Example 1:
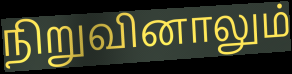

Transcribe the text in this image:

நிறுவினாலும்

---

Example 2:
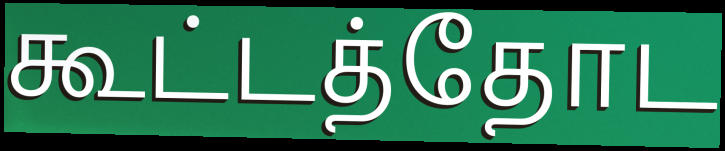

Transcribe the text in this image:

கூட்டத்தோட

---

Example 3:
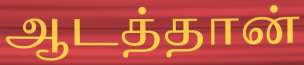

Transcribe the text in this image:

ஆடத்தான்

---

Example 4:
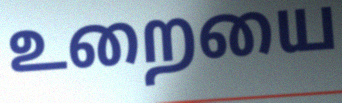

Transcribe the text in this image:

உறையை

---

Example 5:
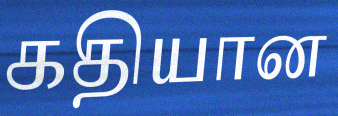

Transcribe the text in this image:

கதியான